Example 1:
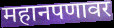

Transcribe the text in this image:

महानपणावर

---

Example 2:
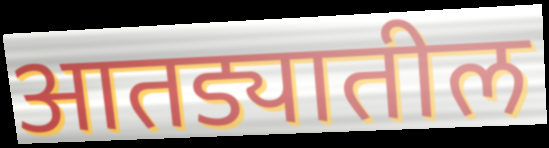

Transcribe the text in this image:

आतड्यातील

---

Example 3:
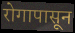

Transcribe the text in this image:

रोगापासून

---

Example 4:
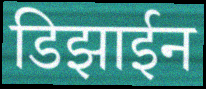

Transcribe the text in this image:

डिझाईन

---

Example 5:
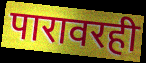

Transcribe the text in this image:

पारावरही